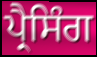
ਪ੍ਰੈਸਿੰਗ